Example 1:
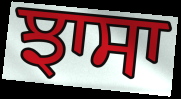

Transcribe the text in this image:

ਝਾਸਾ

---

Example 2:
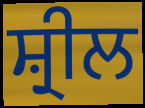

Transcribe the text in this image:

ਸ਼੍ਰੀਲ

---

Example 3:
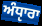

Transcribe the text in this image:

ਅੰਧੵਾਰਾ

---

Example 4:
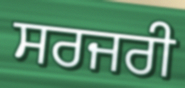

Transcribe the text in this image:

ਸਰਜਰੀ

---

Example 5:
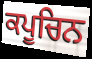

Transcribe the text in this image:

ਕਪੂਚਿਨ